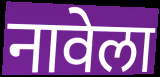
नावेला